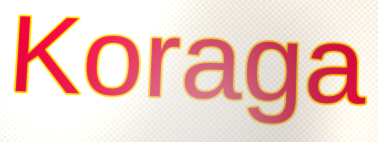
Koraga